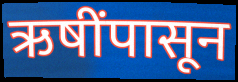
ऋषींपासून